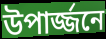
উপার্জ্জনে